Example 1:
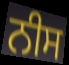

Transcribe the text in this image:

ਨੀਸ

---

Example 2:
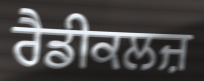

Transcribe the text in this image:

ਰੈਡੀਕਲਜ਼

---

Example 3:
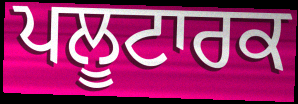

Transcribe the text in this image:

ਪਲੂਟਾਰਕ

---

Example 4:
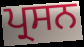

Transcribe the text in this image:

ਪ੍ਰਸਨ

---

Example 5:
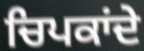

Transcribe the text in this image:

ਚਿਪਕਾਂਦੇ